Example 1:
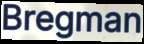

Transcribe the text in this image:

Bregman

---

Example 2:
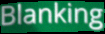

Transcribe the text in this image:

Blanking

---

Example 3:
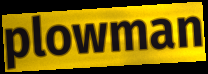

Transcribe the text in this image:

plowman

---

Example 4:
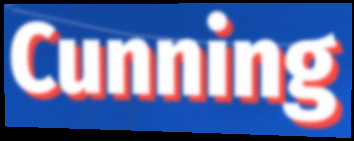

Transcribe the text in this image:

Cunning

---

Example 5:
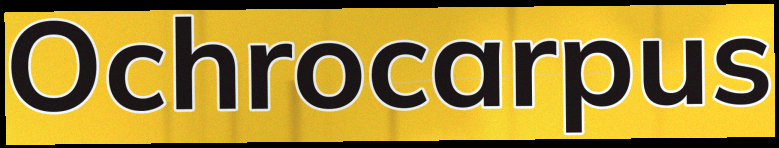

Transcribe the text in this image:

Ochrocarpus